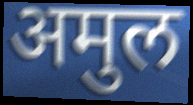
अमुल